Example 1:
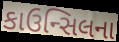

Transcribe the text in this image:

કાઉન્સિલના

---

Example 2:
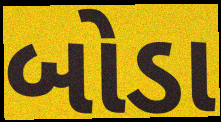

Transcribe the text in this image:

બોડા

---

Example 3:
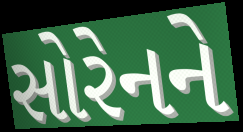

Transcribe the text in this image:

સોરેનને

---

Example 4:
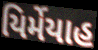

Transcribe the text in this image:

યિર્મેયાહ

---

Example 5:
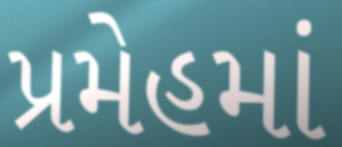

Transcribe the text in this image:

પ્રમેહમાં